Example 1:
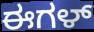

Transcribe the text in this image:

ಈಗಳ್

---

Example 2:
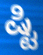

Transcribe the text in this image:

ಷ್ಟಿ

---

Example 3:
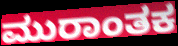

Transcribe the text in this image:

ಮುರಾಂತಕ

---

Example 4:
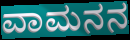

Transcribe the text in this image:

ವಾಮನನ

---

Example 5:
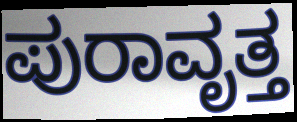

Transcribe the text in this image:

ಪುರಾವೃತ್ತ